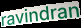
ravindran